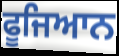
ਫੂਜਿਆਨ